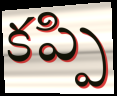
కప్పి